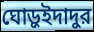
ঘোড়ুইদাদুর